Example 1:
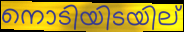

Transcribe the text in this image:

നൊടിയിടയില്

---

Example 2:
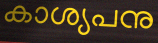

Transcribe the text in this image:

കാശ്യപനു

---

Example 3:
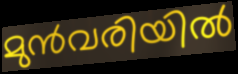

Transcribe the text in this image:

മുൻവരിയിൽ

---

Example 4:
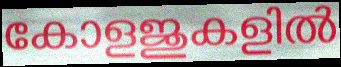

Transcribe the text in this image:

കോളജുകളിൽ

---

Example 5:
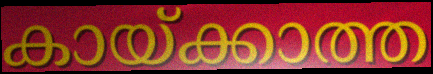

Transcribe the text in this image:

കായ്ക്കാത്ത